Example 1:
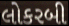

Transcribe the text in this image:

લોકરબી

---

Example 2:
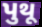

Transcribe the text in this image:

પુથૂ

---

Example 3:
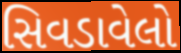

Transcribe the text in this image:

સિવડાવેલો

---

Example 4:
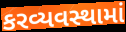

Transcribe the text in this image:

કરવ્યવસ્થામાં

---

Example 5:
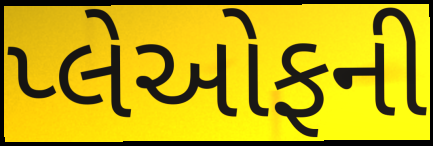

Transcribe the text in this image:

પ્લેઓફની